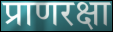
प्राणरक्षा